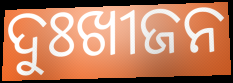
ଦୁଃଖୀଜନ